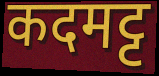
कदमट्ट